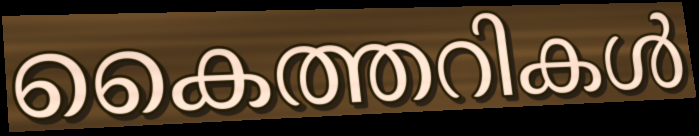
കൈത്തറികൾ